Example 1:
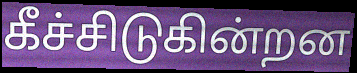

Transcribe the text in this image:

கீச்சிடுகின்றன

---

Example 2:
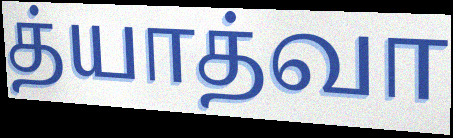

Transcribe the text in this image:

த்யாத்வா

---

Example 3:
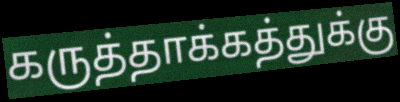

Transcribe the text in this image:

கருத்தாக்கத்துக்கு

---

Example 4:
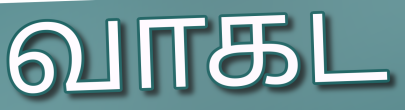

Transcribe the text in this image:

வாகட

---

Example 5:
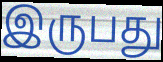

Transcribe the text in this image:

இருபது